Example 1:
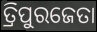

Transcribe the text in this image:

ତ୍ରିପୁରଜେତା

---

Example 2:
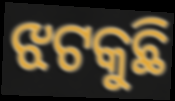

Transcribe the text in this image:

ଝଟକୁଛି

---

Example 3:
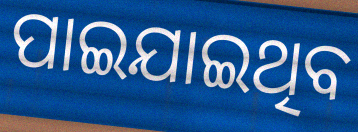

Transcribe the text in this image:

ପାଇଯାଇଥିବ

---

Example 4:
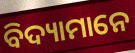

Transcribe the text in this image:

ବିଦ୍ୟାମାନେ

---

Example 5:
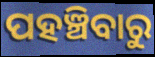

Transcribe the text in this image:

ପହଞ୍ଚିବାରୁ